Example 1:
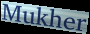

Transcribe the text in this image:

Mukher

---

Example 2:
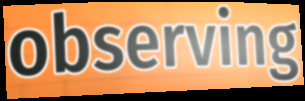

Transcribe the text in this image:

observing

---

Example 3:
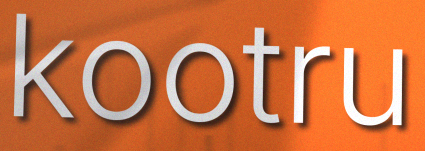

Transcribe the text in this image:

kootru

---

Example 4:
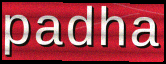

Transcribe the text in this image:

padha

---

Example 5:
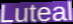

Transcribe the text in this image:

Luteal